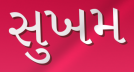
સુખમ